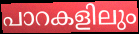
പാറകളിലും